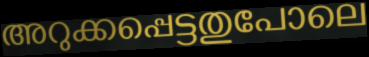
അറുക്കപ്പെട്ടതുപോലെ